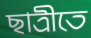
ছাত্রীতে